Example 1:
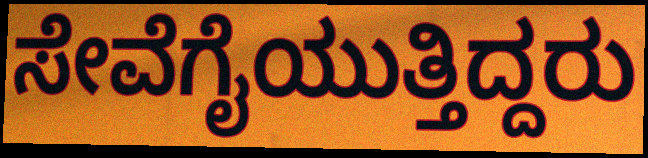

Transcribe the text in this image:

ಸೇವೆಗೈಯುತ್ತಿದ್ದರು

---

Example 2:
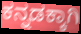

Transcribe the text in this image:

ಕನ್ನಡಕ್ಕಾಗಿ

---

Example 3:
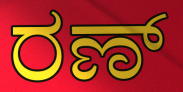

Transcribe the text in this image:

ರಣ್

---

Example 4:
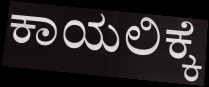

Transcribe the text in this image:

ಕಾಯಲಿಕ್ಕೆ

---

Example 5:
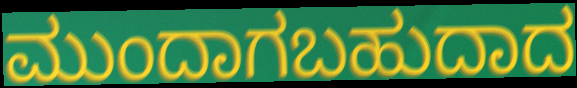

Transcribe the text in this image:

ಮುಂದಾಗಬಹುದಾದ